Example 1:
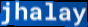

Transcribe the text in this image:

jhalay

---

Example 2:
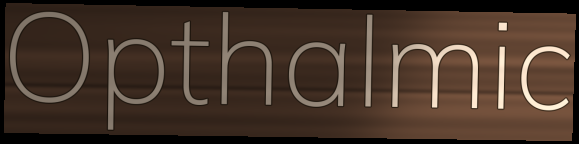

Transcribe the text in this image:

Opthalmic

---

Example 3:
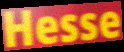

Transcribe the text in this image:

Hesse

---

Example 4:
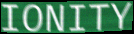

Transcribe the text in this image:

IONITY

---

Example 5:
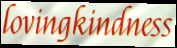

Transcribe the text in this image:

lovingkindness